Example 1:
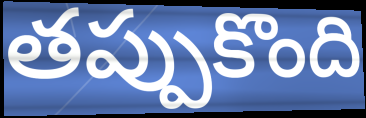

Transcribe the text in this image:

తప్పుకొంది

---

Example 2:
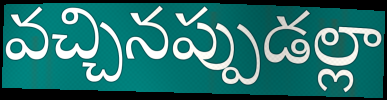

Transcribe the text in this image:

వచ్చినప్పుడల్లా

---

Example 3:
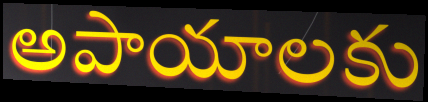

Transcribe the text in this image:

అపాయాలకు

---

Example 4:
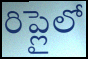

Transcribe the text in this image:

రిప్లైలో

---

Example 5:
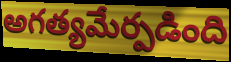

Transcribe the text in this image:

అగత్యమేర్పడింది